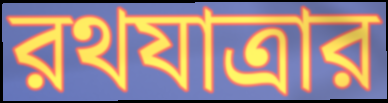
রথযাত্রার